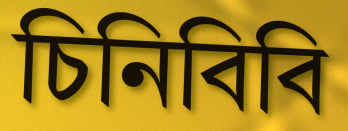
চিনিবিবি